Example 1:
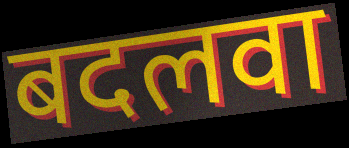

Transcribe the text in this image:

बदलवा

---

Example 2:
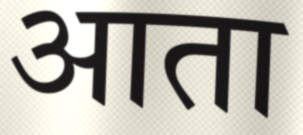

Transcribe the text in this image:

आता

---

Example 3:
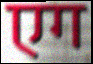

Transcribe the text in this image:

एग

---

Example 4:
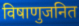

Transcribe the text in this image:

विषाणुजनित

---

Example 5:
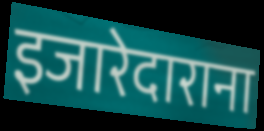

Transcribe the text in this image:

इजारेदाराना